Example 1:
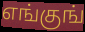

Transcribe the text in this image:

எங்குங்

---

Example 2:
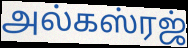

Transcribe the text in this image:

அல்கஸ்ரஜ்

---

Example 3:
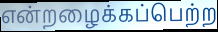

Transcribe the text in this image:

என்றழைக்கப்பெற்ற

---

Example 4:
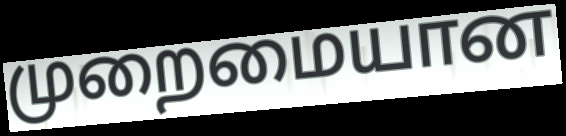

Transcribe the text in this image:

முறைமையான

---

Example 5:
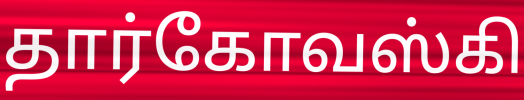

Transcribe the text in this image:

தார்கோவஸ்கி